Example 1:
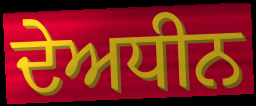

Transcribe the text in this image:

ਦੇਅਧੀਨ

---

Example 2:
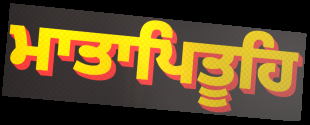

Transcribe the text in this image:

ਮਾਤਾਪਿਤੂਹਿ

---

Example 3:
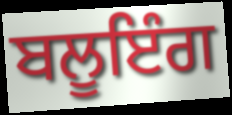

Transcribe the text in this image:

ਬਲੂਇੰਗ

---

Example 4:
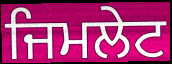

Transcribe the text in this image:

ਜਿਮਲੇਟ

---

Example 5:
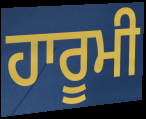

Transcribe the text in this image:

ਹਾਰੂਮੀ